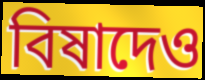
বিষাদেও